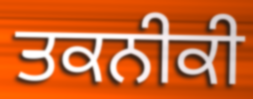
ਤਕਨੀਕੀ